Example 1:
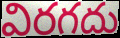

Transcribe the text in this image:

విరగదు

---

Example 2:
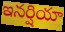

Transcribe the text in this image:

ఇనర్షియా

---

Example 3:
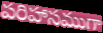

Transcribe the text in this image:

పరిహాసముగా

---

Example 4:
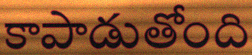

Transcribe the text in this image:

కాపాడుతోంది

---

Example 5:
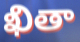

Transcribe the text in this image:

ఖితా